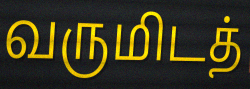
வருமிடத்